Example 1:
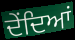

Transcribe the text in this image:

ਦੇਂਦਿਆਂ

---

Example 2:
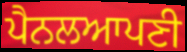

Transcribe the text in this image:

ਪੈਨਲਆਪਣੀ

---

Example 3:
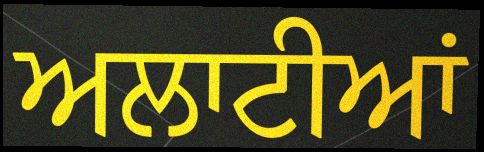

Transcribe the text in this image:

ਅਲਾਟੀਆਂ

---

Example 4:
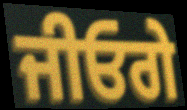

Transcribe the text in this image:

ਜੀਓਗੇ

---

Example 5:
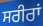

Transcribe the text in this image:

ਸਰੀਰਾਂ